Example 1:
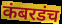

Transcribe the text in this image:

कंबरडंच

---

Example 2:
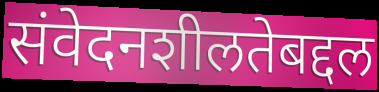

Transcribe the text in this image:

संवेदनशीलतेबद्दल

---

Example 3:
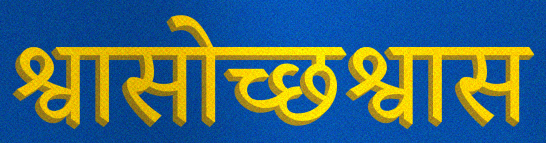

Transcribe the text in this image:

श्वासोच्छश्वास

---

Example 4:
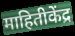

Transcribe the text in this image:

माहितीकेंद्र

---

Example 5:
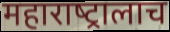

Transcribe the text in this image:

महाराष्ट्रालाच